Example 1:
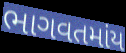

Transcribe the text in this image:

ભાગવતમાંય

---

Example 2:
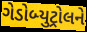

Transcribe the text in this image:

ગેડોબ્યુટ્રોલને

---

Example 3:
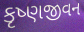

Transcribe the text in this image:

કૃષ્ણજીવન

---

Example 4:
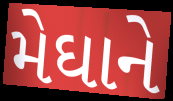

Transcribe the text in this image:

મેઘાને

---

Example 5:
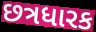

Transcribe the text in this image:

છત્રધારક